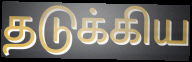
தடுக்கிய